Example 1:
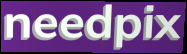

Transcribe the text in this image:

needpix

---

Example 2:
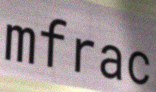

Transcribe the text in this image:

mfrac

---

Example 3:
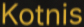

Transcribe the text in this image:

Kotnis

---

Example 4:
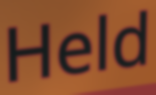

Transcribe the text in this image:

Held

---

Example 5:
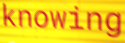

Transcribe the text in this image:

knowing